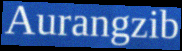
Aurangzib